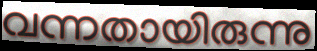
വന്നതായിരുന്നു